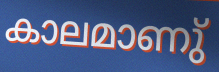
കാലമാണു്